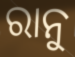
ରାନୁ